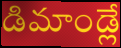
డిమాండ్లే